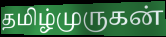
தமிழ்முருகன்